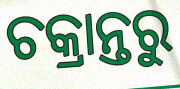
ଚକ୍ରାନ୍ତରୁ